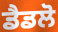
ਡੈਡਲੋ